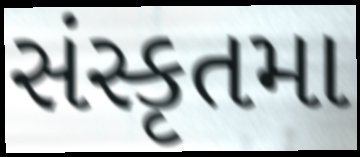
સંસ્કૃતમા